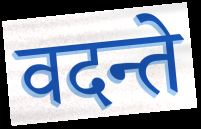
वदन्ते